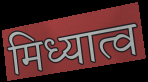
मिध्यात्व